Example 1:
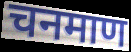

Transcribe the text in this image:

चनमाण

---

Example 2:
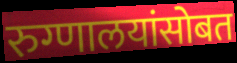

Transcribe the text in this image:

रुग्णालयांसोबत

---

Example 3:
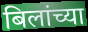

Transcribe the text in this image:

बिलांच्या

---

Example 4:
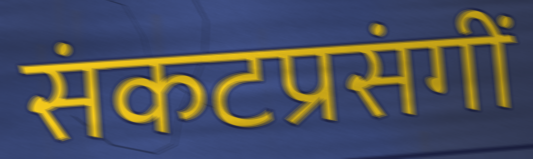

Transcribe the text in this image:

संकटप्रसंगीं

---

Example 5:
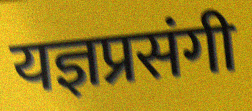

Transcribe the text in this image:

यज्ञप्रसंगी